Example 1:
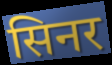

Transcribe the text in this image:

सिनर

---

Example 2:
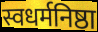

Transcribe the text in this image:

स्वधर्मनिष्ठा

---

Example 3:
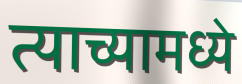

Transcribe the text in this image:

त्याच्यामध्ये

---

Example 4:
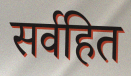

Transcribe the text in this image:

सर्वहित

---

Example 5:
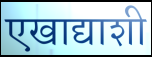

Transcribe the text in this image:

एखाद्याशी